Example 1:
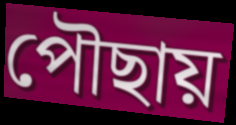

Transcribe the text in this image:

পৌছায়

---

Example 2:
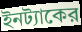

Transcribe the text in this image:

ইনট্যাকের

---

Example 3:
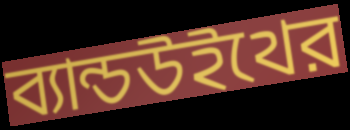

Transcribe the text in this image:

ব্যান্ডউইথের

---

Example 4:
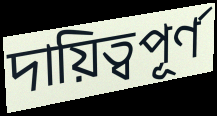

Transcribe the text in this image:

দায়িত্বপূর্ণ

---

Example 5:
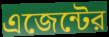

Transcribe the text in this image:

এজেন্টের